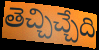
తెచ్చిచ్చేది